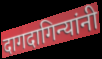
दागदागिन्यांनी